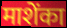
माशेंका